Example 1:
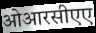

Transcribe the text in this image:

ओआरसीएए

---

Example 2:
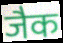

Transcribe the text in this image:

जैक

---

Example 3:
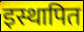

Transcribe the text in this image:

इस्थापित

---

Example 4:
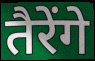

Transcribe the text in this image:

तैरेंगे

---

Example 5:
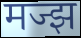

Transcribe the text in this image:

मज्झ